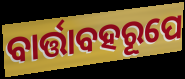
ବାର୍ତ୍ତାବହରୂପେ